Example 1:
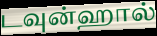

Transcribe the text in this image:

டவுன்ஹால்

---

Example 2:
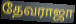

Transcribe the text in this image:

தேவராஜா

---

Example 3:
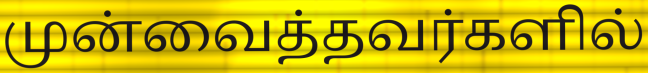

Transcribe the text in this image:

முன்வைத்தவர்களில்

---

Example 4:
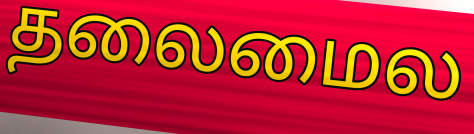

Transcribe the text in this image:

தலைமைல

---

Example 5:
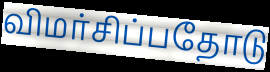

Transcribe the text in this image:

விமர்சிப்பதோடு